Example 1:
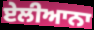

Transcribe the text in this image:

ਏਲੀਆਨਾ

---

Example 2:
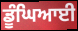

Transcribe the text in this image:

ਡੂੰਘਿਆਈ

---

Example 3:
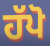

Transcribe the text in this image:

ਹੱਪੋ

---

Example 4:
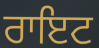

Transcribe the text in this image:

ਰਾਇਟ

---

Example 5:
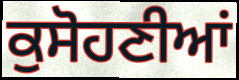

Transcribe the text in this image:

ਕੁਸੋਹਣੀਆਂ